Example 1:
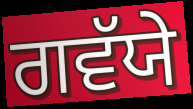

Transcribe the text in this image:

ਗਵੱਯੇ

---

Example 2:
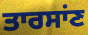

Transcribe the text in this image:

ਤਾਰਸਾਂਣ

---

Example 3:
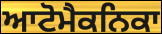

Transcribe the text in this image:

ਆਟੋਮੈਕਨਿਕਾ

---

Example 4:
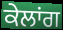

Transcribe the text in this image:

ਕੇਲਾਂਗ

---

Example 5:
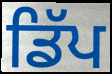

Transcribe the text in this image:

ਡਿੱਪ